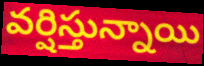
వర్షిస్తున్నాయి